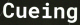
Cueing